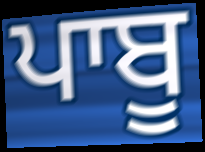
ਪਾਬੂ